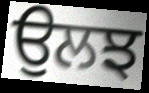
ਉਲਝ